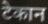
टेकान